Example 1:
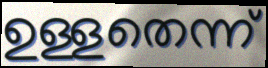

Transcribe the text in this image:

ഉള്ളതെന്ന്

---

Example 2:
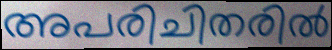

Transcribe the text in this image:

അപരിചിതരിൽ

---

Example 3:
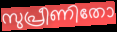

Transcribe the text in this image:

സുപ്രീണിതോ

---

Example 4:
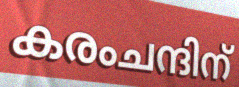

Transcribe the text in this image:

കരംചന്ദിന്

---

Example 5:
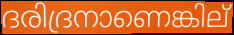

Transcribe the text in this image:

ദരിദ്രനാണെങ്കില്